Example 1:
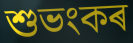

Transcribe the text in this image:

শুভংকৰ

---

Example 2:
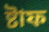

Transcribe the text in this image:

ষ্টাফ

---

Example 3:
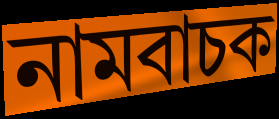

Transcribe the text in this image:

নামবাচক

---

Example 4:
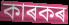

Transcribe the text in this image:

কাৰকৰ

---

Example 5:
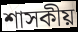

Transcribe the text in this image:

শাসকীয়